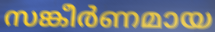
സങ്കീർണമായ